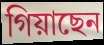
গিয়াছেন